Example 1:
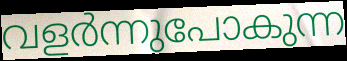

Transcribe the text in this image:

വളർന്നുപോകുന്ന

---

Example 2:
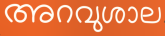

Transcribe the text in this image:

അറവുശാല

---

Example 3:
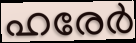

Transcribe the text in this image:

ഹരേർ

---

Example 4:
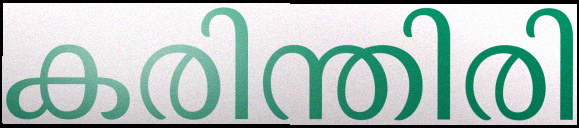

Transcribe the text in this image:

കരിന്തിരി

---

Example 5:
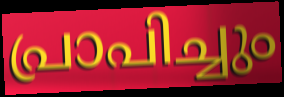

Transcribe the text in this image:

പ്രാപിച്ചും